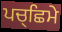
ਪਚ੍ਛਿਮੇ